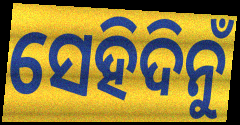
ସେହିଦିନୁଁ